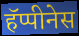
हॅप्पीनेस